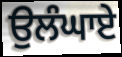
ਉਲੰਘਾਏ